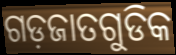
ଗଡ଼ଜାତଗୁଡିକ